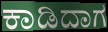
ಕಾಡಿದಾಗ